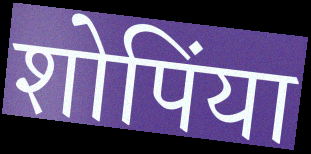
शोपिंया